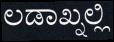
ಲಡಾಖ್ನಲ್ಲಿ